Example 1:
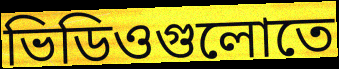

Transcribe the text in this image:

ভিডিওগুলোতে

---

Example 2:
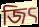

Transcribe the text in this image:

জিৎ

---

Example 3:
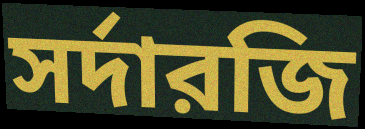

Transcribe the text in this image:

সর্দারজি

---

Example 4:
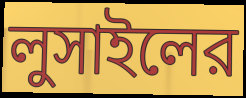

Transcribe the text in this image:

লুসাইলের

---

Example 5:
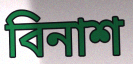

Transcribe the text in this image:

বিনাশ